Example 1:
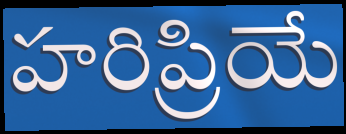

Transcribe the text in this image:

హరిప్రియే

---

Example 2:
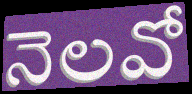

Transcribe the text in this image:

నెలవో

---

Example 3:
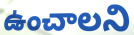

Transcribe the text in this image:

ఉంచాలని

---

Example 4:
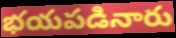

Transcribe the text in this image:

భయపడినారు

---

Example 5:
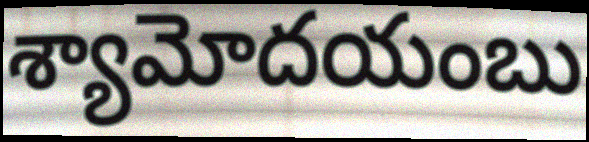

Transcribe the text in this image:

శ్యామోదయంబు